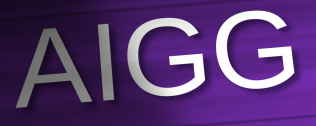
AIGG